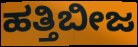
ಹತ್ತಿಬೀಜ